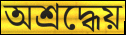
অশ্রদ্ধেয়